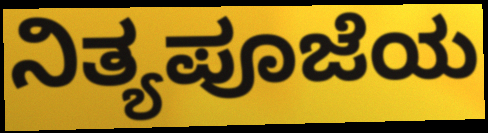
ನಿತ್ಯಪೂಜೆಯ